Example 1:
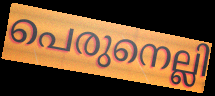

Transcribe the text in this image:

പെരുനെല്ലി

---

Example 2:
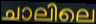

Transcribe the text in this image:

ചാലിലെ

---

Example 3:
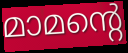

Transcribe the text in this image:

മാമന്റെ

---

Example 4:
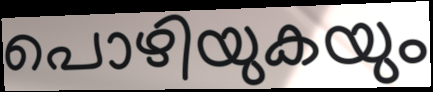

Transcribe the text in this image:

പൊഴിയുകയും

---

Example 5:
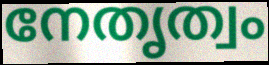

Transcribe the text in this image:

നേതൃത്വം